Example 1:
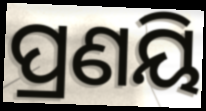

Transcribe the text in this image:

ପ୍ରଣୟି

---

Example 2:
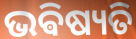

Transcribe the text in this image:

ଭଵିଷ୍ୟତି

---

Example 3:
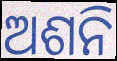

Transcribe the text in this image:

ଅଶନି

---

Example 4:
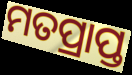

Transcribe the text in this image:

ମତପ୍ରାପ୍ତ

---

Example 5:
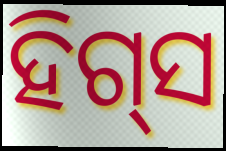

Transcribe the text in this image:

ହିଗ୍‌ସ